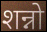
शन्नो